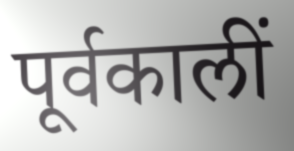
पूर्वकालीं